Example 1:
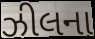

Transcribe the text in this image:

ઝીલના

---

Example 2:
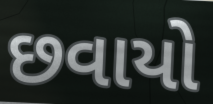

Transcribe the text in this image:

છવાયો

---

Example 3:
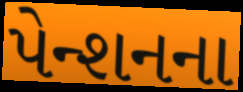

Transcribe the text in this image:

પેન્શનના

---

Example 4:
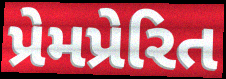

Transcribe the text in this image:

પ્રેમપ્રેરિત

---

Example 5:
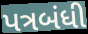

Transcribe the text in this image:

પત્રબંધી